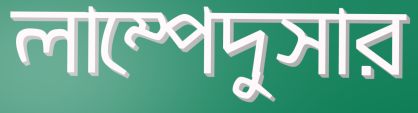
লাম্পেদুসার